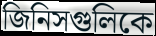
জিনিসগুলিকে